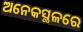
ଅନେକସ୍ଥଳରେ